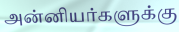
அன்னியர்களுக்கு